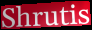
Shrutis